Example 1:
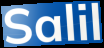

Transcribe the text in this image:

Salil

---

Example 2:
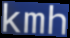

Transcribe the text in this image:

kmh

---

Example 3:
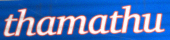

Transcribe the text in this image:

thamathu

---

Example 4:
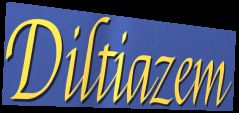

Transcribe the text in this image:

Diltiazem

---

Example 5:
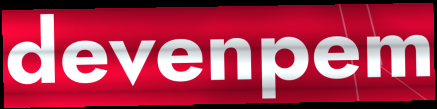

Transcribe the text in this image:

devenpem